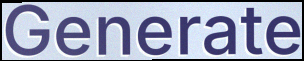
Generate